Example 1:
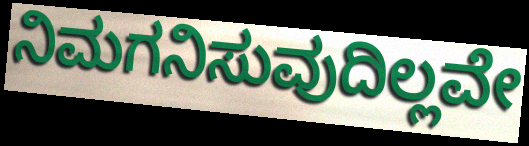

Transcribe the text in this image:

ನಿಮಗನಿಸುವುದಿಲ್ಲವೇ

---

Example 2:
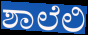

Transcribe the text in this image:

ಶಾಲೆಲಿ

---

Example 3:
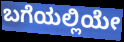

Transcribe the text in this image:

ಬಗೆಯಲ್ಲಿಯೇ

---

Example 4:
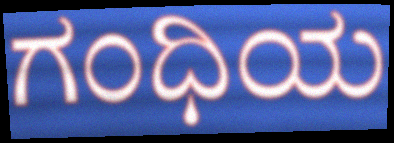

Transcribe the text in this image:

ಗಂಧಿಯ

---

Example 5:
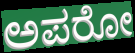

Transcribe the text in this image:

ಅಪರೋ